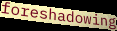
foreshadowing